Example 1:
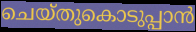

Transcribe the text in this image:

ചെയ്തുകൊടുപ്പാൻ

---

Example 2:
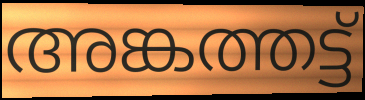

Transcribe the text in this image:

അങ്കത്തട്ട്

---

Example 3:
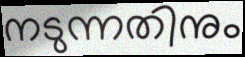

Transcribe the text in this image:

നടുന്നതിനും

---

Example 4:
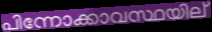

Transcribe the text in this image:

പിന്നോക്കാവസ്ഥയില്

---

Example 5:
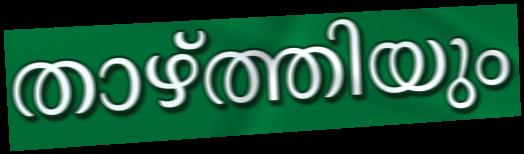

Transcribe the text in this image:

താഴ്ത്തിയും